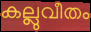
കല്ലുവീതം